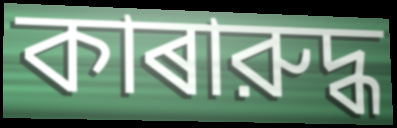
কাৰাৰুদ্ধ